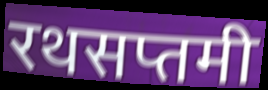
रथसप्तमी